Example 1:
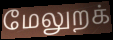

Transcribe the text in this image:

மேலுறக்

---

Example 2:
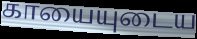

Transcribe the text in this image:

காயையுடைய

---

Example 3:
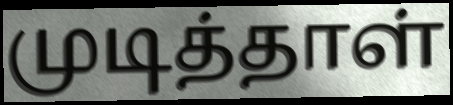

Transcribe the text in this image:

முடித்தாள்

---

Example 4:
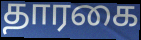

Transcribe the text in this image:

தாரகை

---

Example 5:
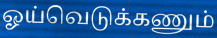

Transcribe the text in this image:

ஓய்வெடுக்கணும்